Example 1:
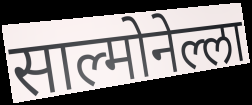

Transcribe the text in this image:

साल्मोनेल्ला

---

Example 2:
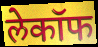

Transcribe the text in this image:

लेकॉफ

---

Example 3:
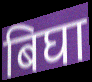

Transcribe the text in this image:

बिघा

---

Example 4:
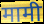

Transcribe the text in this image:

मामी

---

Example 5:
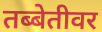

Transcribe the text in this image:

तब्बेतीवर